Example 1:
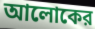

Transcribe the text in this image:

আলোকের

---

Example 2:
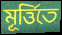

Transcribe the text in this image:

মূর্ত্তিতে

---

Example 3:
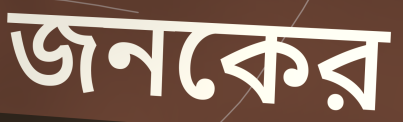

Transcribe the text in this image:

জনকের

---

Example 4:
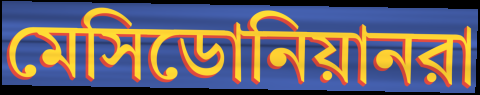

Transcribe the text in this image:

মেসিডোনিয়ানরা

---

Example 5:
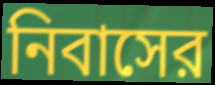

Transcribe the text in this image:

নিবাসের